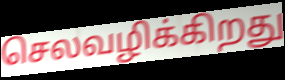
செலவழிக்கிறது